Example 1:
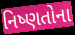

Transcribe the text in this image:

નિષ્ણતોના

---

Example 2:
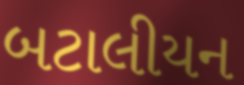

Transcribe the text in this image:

બટાલીયન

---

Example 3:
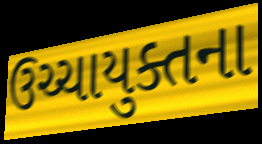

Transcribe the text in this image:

ઉચ્ચાયુક્તના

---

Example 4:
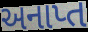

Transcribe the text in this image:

અનાપ્ત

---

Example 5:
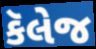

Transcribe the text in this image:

કૅલેજ